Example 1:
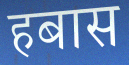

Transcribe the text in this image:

हबास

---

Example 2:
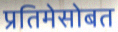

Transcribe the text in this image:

प्रतिमेसोबत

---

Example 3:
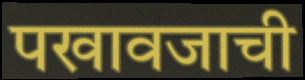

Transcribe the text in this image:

पखावजाची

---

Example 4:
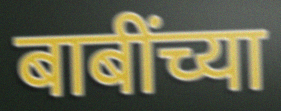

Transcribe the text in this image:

बाबींच्या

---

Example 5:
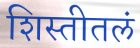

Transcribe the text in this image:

शिस्तीतलं